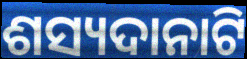
ଶସ୍ୟଦାନାଟି